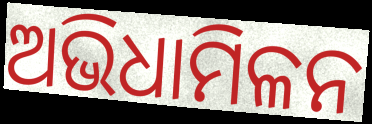
ଅଭିଧାମିଳନ